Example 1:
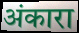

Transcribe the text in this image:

अंकारा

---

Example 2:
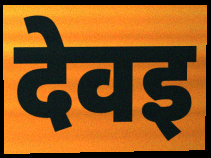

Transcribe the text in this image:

देवइ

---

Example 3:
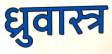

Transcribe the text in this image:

ध्रुवास्त्र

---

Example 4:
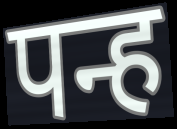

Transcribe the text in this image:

पन्ह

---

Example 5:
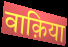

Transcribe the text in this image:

वाक़िया